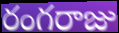
రంగరాజు